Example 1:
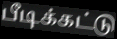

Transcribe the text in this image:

பீடிக்கட்டு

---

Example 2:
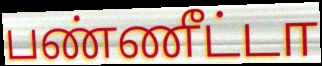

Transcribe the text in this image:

பண்ணீட்டா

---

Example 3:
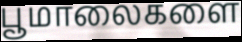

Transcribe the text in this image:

பூமாலைகளை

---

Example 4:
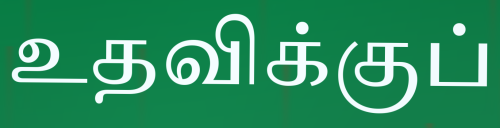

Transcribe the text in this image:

உதவிக்குப்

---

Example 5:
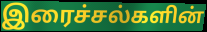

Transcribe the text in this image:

இரைச்சல்களின்